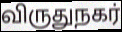
விருதுநகர்